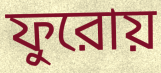
ফুরোয়